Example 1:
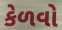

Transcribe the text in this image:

કેળવો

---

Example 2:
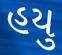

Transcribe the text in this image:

હયુ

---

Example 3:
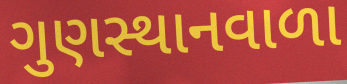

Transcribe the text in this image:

ગુણસ્થાનવાળા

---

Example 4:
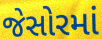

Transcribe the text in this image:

જેસોરમાં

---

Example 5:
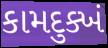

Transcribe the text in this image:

કામદુક્ખં